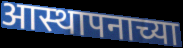
आस्थापनाच्या